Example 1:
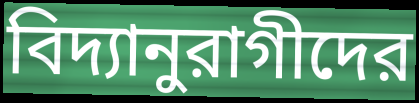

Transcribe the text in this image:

বিদ্যানুরাগীদের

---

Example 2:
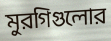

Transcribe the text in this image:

মুরগিগুলোর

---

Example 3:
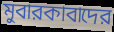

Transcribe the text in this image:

মুবারকাবাদের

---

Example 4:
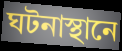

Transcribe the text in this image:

ঘটনাস্থানে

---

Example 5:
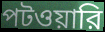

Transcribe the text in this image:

পটওয়ারি